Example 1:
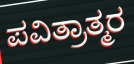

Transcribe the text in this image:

ಪವಿತ್ರಾತ್ಮರ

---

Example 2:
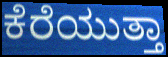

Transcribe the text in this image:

ಕೆರೆಯುತ್ತಾ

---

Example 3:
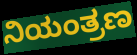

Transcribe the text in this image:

ನಿಯಂತ್ರಣ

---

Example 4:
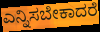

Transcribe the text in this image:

ಎನ್ನಿಸಬೇಕಾದರೆ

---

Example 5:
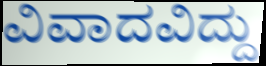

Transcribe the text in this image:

ವಿವಾದವಿದ್ದು